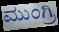
ಮುಂಗ್ರಿ